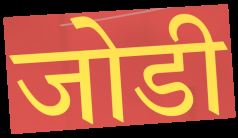
जोडी